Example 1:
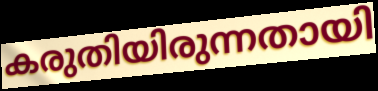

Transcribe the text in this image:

കരുതിയിരുന്നതായി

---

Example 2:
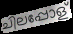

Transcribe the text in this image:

ചിലപ്പോള്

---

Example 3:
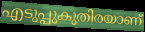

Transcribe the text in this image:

എടുപ്പുകുതിരയാണ്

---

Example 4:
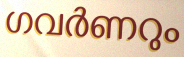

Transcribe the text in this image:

ഗവർണറും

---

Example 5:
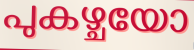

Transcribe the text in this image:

പുകഴ്ചയോ